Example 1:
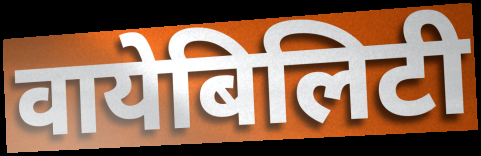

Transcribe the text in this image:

वायेबिलिटी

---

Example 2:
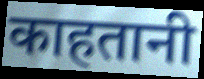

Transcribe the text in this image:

काहतानी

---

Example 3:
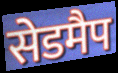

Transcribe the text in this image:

सेडमैप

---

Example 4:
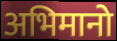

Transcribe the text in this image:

अभिमानो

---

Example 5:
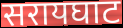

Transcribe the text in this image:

सरायघाट